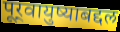
पूर्वायुष्याबद्दल